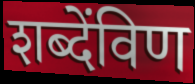
शब्देंविण